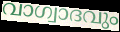
വാഗ്വാദവും